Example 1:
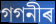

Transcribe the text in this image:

গগনীৰ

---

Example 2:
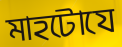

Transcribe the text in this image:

মাহটোযে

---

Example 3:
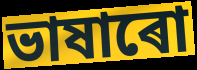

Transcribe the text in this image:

ভাষাৰো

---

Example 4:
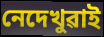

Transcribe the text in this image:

নেদেখুৱাই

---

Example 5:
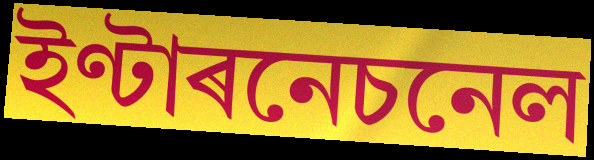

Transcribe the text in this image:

ইণ্টাৰনেচনেল